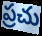
ప్రచు